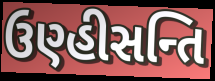
ઉણ્હીસન્તિ